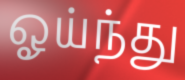
ஓய்ந்து